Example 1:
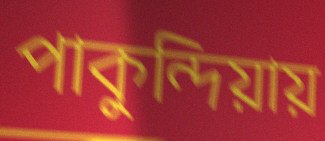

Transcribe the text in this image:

পাকুন্দিয়ায়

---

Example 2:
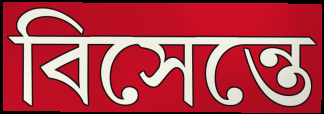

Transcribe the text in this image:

বিসেন্তে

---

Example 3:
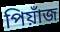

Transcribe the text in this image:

পিয়াঁজ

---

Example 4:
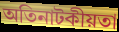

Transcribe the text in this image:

অতিনাটকীয়তা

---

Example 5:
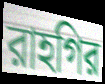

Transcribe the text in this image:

রাহগির